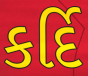
કર્દિ